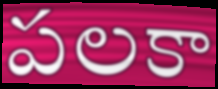
పలకా